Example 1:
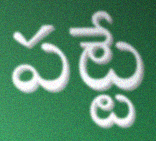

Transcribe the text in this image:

పట్టే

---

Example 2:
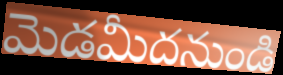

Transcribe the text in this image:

మెడమీదనుండి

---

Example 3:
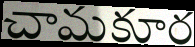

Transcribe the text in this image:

చామకూర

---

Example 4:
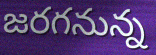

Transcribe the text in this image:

జరగనున్న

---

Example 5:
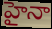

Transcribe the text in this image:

హైనా